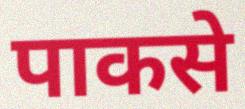
पाकसे